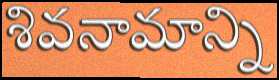
శివనామాన్ని